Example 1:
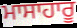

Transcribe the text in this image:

ਮਾਸਾਹਾਰੂ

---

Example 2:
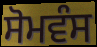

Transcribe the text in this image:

ਸੋਮਵੰਸ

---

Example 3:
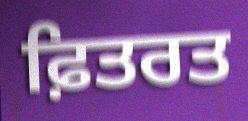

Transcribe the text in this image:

ਫ਼ਿਤਰਤ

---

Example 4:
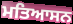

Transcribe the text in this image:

ਮਤਿਆਸਨ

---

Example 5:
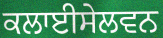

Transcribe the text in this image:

ਕਲਾਈਸੇਲਵਨ